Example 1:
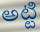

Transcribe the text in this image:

అట్టి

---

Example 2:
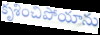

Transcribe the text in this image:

కృశించిపోయాను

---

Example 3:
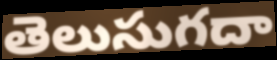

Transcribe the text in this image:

తెలుసుగదా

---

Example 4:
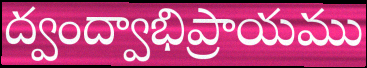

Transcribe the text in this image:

ద్వంద్వాభిప్రాయము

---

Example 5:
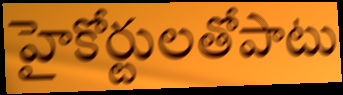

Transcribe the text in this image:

హైకోర్టులతోపాటు